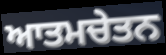
ਆਤਮਚੇਤਨ